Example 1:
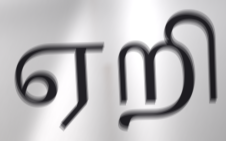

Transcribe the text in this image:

ஏறி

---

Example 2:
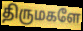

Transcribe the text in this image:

திருமகளே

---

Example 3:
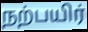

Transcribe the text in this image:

நற்பயிர்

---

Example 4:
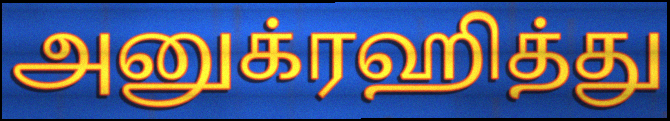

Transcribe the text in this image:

அனுக்ரஹித்து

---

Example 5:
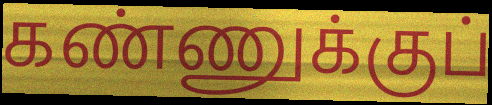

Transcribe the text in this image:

கண்ணுக்குப்